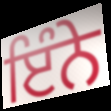
ਇੰਨੇ